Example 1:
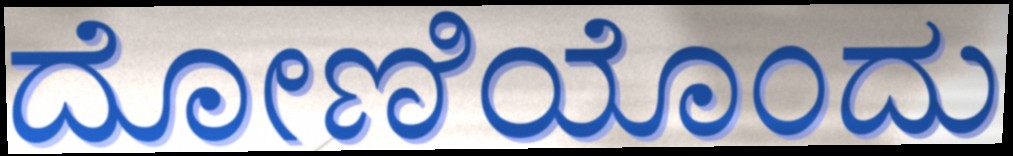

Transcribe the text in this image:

ದೋಣಿಯೊಂದು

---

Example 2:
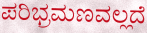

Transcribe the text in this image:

ಪರಿಭ್ರಮಣವಲ್ಲದೆ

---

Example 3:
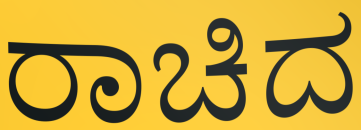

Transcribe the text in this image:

ರಾಚಿದ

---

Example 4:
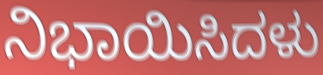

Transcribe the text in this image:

ನಿಭಾಯಿಸಿದಳು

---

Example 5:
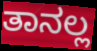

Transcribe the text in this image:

ತಾನಲ್ಲ